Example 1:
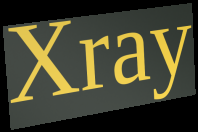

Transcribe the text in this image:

Xray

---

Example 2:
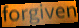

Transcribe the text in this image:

forgiven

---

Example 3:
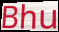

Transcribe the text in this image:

Bhu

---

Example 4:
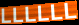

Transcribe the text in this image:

LLLLLL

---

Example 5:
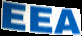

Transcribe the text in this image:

EEA